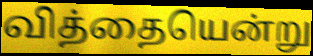
வித்தையென்று